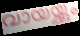
വായയ്ക്കും